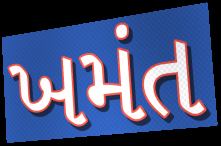
ખમંત